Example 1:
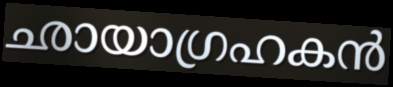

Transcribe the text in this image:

ഛായാഗ്രഹകൻ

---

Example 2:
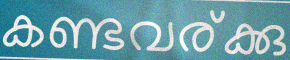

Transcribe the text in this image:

കണ്ടവര്ക്കു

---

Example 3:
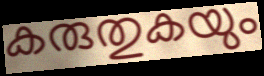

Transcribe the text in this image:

കരുതുകയും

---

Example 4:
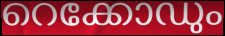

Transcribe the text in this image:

റെക്കോഡും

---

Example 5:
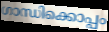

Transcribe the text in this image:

ഗാന്ധിക്കൊപ്പം